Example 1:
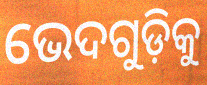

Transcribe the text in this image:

ଭେଦଗୁଡ଼ିକୁ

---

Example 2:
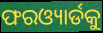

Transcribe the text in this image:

ଫରଓ୍ୟାର୍ଡକୁ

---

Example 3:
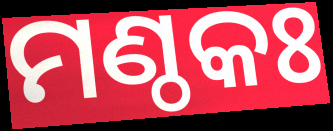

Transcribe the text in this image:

ମଣ୍ଠକଃ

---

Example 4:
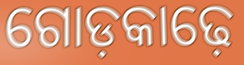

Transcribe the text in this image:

ଗୋଡ଼କାଢ଼େ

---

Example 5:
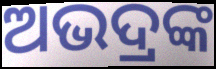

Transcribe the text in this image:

ଅଭଦ୍ରଙ୍କ